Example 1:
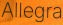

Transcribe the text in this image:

Allegra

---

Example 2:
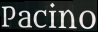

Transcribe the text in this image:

Pacino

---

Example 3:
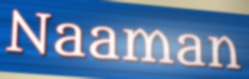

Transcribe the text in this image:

Naaman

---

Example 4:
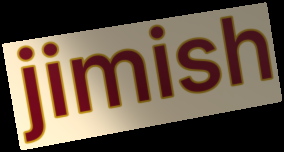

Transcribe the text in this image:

jimish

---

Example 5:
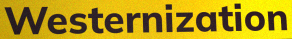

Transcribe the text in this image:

Westernization